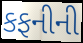
કફનીની